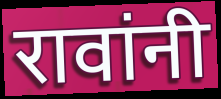
रावांनी